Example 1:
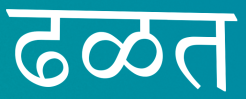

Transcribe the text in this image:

ढळत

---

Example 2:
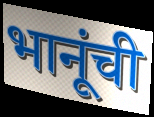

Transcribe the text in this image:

भानूंची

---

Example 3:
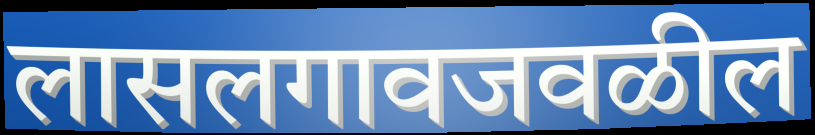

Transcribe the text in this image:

लासलगावजवळील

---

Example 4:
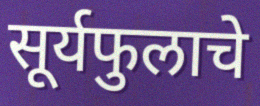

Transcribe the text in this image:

सूर्यफुलाचे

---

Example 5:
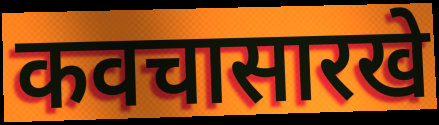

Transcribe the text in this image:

कवचासारखे